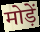
मोड़ें